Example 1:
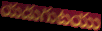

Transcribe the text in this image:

యడుగుటయు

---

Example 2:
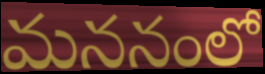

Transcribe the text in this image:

మననంలో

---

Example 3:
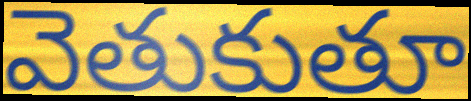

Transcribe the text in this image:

వెతుకుతూ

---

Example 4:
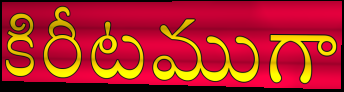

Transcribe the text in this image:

కిరీటముగా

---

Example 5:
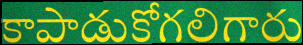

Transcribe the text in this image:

కాపాడుకోగలిగారు